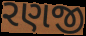
રણજી